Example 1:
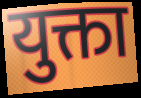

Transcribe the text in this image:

युक्ता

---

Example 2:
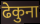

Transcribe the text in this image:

ढेकुना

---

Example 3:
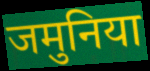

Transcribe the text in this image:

जमुनिया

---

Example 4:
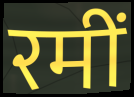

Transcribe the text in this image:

रमीं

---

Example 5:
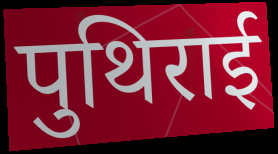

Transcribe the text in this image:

पुथिराई